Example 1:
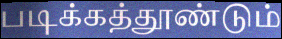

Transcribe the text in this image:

படிக்கத்தூண்டும்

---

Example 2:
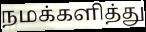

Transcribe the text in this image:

நமக்களித்து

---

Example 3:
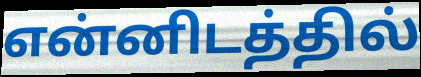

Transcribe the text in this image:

என்னிடத்தில்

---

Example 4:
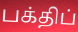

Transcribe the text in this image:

பக்திப்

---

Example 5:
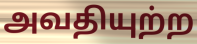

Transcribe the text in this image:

அவதியுற்ற